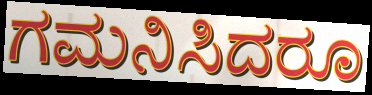
ಗಮನಿಸಿದರೂ